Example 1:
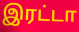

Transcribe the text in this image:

இரட்டா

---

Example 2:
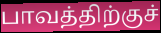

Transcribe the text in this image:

பாவத்திற்குச்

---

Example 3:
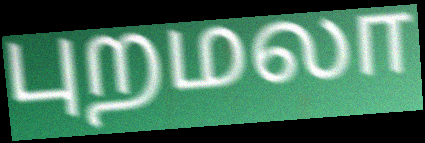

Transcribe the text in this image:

புறமலா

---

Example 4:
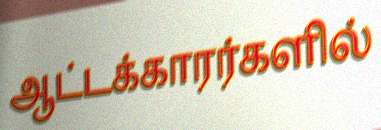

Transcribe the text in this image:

ஆட்டக்காரர்களில்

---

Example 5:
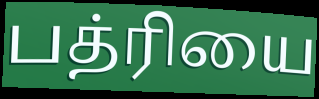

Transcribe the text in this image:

பத்ரியை